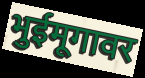
भुईमूगावर